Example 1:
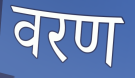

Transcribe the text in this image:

वरण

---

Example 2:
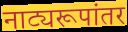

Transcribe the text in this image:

नाट्यरूपांतर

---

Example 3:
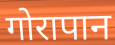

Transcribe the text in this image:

गोरापान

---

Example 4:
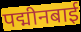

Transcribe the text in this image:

पद्मीनबाई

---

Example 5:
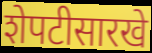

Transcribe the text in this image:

शेपटीसारखे